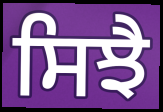
ਸਿਝੈ